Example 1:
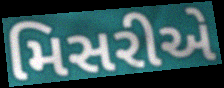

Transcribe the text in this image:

મિસરીએ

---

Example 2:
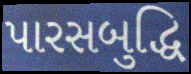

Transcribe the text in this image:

પારસબુદ્ધિ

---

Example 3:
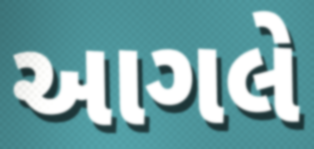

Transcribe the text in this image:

આગલે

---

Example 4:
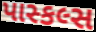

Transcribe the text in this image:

પાસ્કલ્સ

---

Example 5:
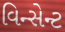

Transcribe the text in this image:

વિન્સેન્ટ